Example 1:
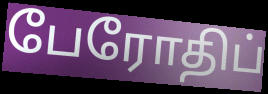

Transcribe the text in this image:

பேரோதிப்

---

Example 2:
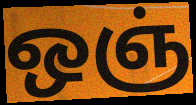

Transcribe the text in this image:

ஒஞ்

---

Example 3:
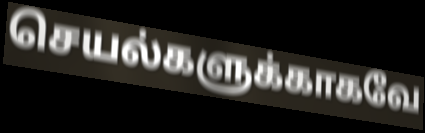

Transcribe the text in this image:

செயல்களுக்காகவே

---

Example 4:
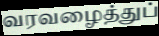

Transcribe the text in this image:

வரவழைத்துப்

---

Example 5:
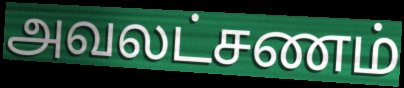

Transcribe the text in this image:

அவலட்சணம்